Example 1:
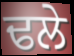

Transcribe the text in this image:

ਢਲੇ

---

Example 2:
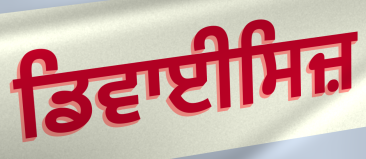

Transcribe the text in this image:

ਡਿਵਾਈਸਿਜ਼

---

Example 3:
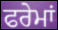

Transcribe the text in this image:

ਫਰੇਮਾਂ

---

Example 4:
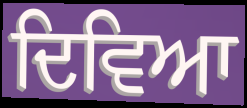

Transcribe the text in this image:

ਦਿਵਿਆ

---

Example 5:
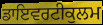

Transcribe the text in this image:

ਡਾਇਵਰਟੀਕੁਲਮ